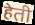
हेती